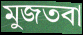
মুজতবা